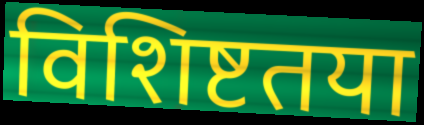
विशिष्टतया